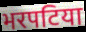
भरपटिया